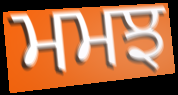
ਮਮਝ